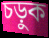
চড়ুক